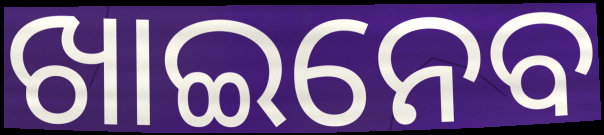
ଖାଇନେବ